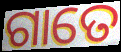
ଗାତେ